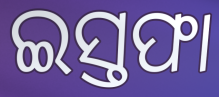
ଇସ୍ତଫା